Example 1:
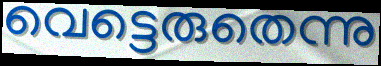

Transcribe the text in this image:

വെട്ടെരുതെന്നു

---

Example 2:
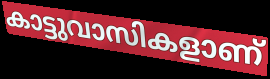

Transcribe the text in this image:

കാട്ടുവാസികളാണ്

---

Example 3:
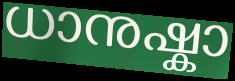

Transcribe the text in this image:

ധാനുഷ്കാ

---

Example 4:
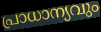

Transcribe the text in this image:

പ്രാധാന്യവും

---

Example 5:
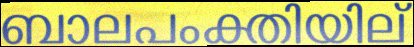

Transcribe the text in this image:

ബാലപംക്തിയില്